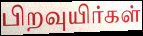
பிறவுயிர்கள்